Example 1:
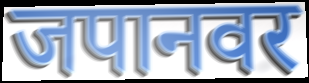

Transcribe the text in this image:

जपानवर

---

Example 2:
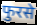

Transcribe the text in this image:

फुरसे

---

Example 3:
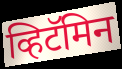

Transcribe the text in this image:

व्हिटॅमिन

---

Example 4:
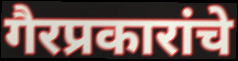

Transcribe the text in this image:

गैरप्रकारांचे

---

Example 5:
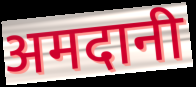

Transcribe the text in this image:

अमदानी